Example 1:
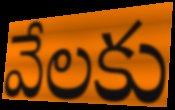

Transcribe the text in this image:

వేలకు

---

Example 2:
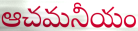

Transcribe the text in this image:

ఆచమనీయం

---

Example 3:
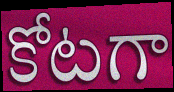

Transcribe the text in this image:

కోటగా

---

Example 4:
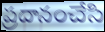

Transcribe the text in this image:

ప్రదానంచేసి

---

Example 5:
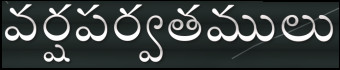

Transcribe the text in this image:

వర్షపర్వతములు